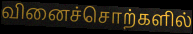
வினைச்சொற்களில்